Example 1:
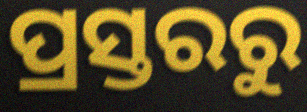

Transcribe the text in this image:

ପ୍ରସ୍ତରରୁ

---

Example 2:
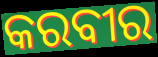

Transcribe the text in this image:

କରବୀର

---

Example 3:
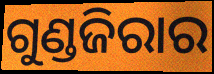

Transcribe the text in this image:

ଗୁଣ୍ଡଜିରାର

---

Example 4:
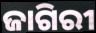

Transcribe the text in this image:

ଜାଗିରୀ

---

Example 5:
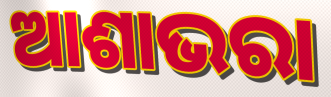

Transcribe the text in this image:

ଆଶାଭରା